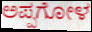
ಅಪ್ಪಗೋಳ